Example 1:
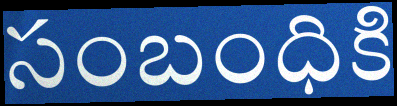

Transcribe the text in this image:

సంబంధికి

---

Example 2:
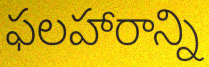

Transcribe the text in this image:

ఫలహారాన్ని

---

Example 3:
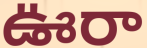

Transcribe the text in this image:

ఊరా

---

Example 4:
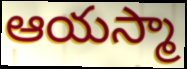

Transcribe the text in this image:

ఆయస్మా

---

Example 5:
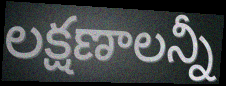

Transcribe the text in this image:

లక్షణాలన్నీ